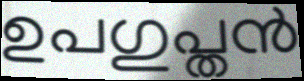
ഉപഗുപ്തൻ